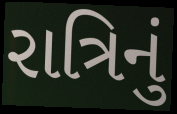
રાત્રિનું